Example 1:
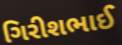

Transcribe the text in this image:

ગિરીશભાઈ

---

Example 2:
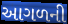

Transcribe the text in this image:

આગળની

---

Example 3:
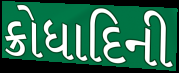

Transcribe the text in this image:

ક્રોધાદિની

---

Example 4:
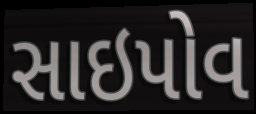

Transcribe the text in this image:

સાઇપોવ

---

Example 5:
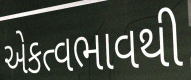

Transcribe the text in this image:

એકત્વભાવથી